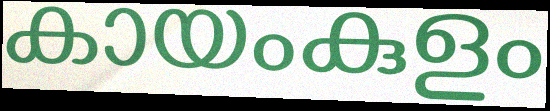
കായംകുളം